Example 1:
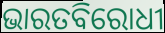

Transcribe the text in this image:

ଭାରତବିରୋଧୀ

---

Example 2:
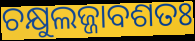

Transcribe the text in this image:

ଚକ୍ଷୁଲଜ୍ଜାବଶତଃ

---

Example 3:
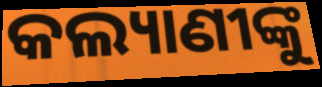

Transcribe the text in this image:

କଲ୍ୟାଣୀଙ୍କୁ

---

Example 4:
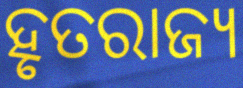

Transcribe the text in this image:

ହୃତରାଜ୍ୟ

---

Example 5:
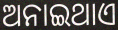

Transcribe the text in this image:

ଅନାଇଥାଏ